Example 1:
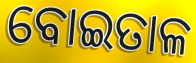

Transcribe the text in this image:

ବୋଇତାଳ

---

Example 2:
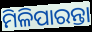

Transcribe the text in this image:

ମିଳିପାରନ୍ତା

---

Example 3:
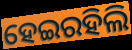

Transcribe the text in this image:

ହେଇରହିଲି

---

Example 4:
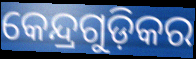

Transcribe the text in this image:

କେନ୍ଦ୍ରଗୁଡ଼ିକର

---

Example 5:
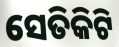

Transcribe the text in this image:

ସେତିକିଟି